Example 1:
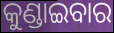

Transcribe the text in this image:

କୁଣ୍ଡାଇବାର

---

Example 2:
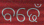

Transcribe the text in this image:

ବଢେଁ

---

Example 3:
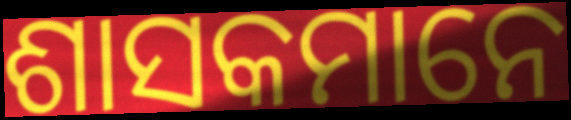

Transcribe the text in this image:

ଶାସକମାନେ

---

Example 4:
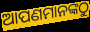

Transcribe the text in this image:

ଆପଣମାନଙ୍କଠୁ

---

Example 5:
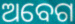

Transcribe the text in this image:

ଅବେଗ